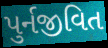
પુર્નજીવિત